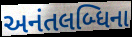
અનંતલબ્ધિના